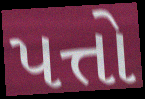
પત્તો